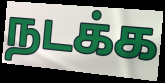
நடக்க